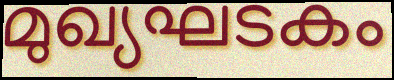
മുഖ്യഘടകം